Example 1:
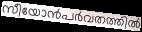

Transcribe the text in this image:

സീയോൻപർവതത്തിൽ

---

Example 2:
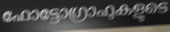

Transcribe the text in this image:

ഫോട്ടോഗ്രാഫുകളുടെ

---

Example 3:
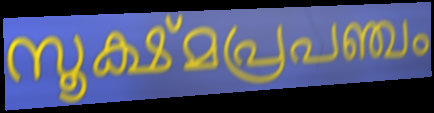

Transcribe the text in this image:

സൂക്ഷ്മപ്രപഞ്ചം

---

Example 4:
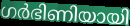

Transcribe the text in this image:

ഗർഭിണിയായി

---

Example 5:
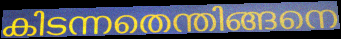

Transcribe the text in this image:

കിടന്നതെന്തിങ്ങനെ